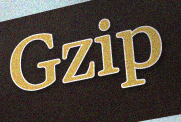
Gzip